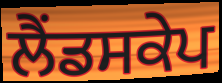
ਲੈਂਡਸਕੇਪ